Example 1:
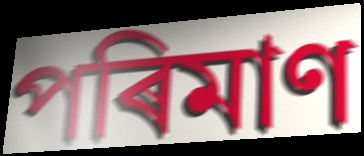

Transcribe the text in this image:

পৰিমাণ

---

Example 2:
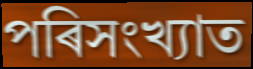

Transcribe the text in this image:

পৰিসংখ্যাত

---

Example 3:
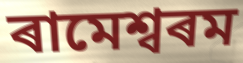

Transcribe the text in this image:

ৰামেশ্বৰম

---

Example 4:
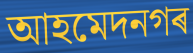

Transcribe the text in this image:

আহমেদনগৰ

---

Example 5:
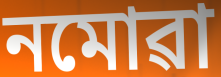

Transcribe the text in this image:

নমোৱা